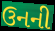
ઉનની